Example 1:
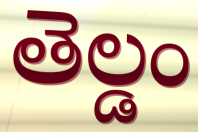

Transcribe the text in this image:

తెల్డం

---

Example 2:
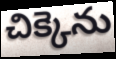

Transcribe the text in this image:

చిక్కెను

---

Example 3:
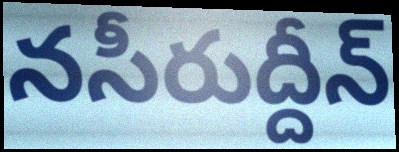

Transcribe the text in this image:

నసీరుద్దీన్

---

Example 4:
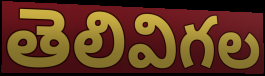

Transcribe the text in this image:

తెలివిగల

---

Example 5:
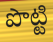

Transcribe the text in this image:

పొట్టి